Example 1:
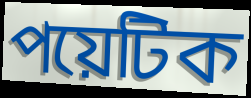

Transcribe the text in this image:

পয়েটিক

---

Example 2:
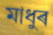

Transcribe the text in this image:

মাধুৰ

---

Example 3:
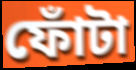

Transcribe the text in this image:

ফোঁটা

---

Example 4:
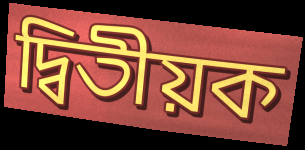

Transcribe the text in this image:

দ্বিতীয়ক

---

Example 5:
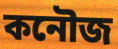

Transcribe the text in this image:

কনৌজ